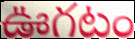
ఊగటం